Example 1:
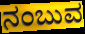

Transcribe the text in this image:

ನಂಬುವ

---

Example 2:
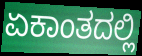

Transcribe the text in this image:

ಏಕಾಂತದಲ್ಲಿ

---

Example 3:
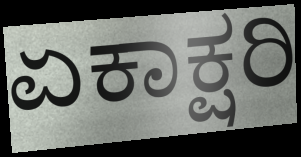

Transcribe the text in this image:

ಏಕಾಕ್ಷರಿ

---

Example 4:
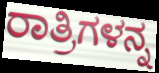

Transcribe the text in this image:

ರಾತ್ರಿಗಳನ್ನ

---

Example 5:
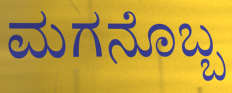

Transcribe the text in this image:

ಮಗನೊಬ್ಬ